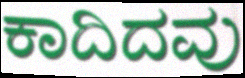
ಕಾದಿದವು